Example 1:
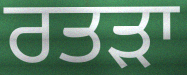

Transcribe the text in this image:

ਰਤੜਾ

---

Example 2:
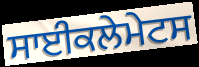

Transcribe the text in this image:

ਸਾਈਕਲੇਮੇਟਸ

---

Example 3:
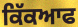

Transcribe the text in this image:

ਕਿੱਕਆਫ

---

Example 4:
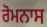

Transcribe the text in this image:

ਰੋਮਨਾਸ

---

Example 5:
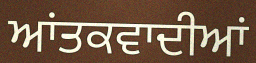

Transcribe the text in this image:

ਆਂਤਕਵਾਦੀਆਂ